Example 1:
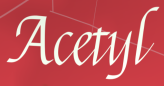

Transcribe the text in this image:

Acetyl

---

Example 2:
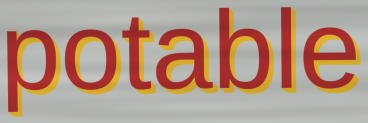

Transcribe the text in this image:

potable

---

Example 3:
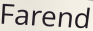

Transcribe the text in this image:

Farend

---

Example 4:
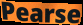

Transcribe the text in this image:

Pearse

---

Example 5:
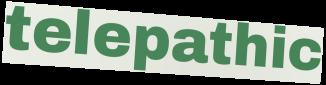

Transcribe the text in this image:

telepathic